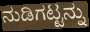
ನುಡಿಗಟ್ಟನ್ನು